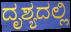
ದೃಶ್ಯದಲ್ಲಿ